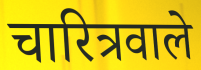
चारित्रवाले